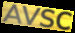
AVSC